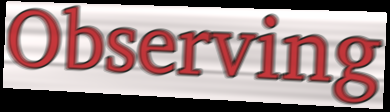
Observing